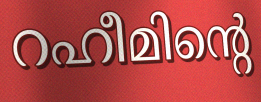
റഹീമിന്റെ